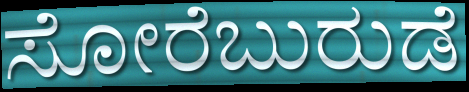
ಸೋರೆಬುರುಡೆ